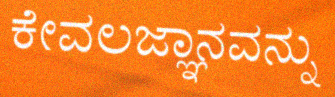
ಕೇವಲಜ್ಞಾನವನ್ನು